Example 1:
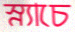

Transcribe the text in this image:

স্ন্যাচে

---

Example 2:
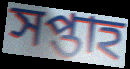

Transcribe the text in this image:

সপ্তাহ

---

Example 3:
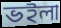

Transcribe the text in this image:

ভইলা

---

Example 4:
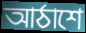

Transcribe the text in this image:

আঠাশে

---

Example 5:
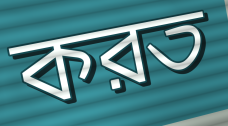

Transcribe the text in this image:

করত